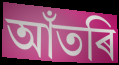
আঁতৰি